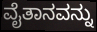
ವೈತಾನವನ್ನು